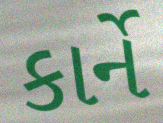
કાર્ને